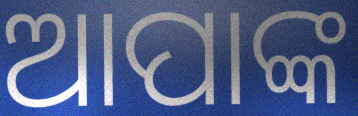
ଆପାଙ୍କ